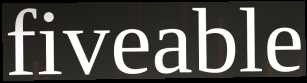
fiveable